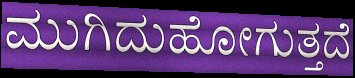
ಮುಗಿದುಹೋಗುತ್ತದೆ